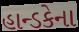
હાન્ડકેના